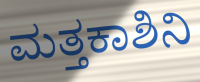
ಮತ್ತಕಾಶಿನಿ